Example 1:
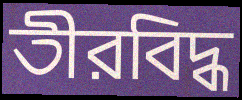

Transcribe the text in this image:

তীরবিদ্ধ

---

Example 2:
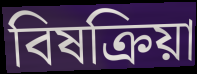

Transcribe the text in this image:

বিষক্রিয়া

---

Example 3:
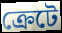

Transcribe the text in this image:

ক্রেটে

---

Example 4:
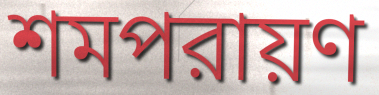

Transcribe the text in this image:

শমপরায়ণ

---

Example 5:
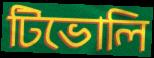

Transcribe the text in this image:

টিভোলি